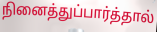
நினைத்துப்பார்த்தால்